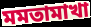
মমতামাখা